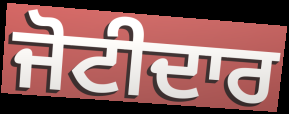
ਜੋਟੀਦਾਰ